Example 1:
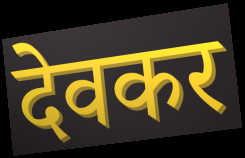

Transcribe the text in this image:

देवकर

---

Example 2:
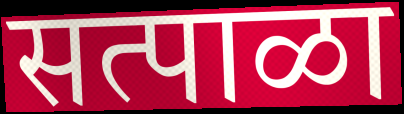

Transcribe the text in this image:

सत्पाळा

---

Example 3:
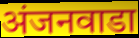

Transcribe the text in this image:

अंजनवाडा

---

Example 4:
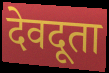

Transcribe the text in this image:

देवदूता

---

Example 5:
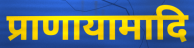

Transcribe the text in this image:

प्राणायामादि